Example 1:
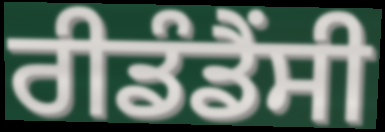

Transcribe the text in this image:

ਰੀਡੰਡੈਂਸੀ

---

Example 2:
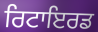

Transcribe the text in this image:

ਰਿਟਾਇਰਡ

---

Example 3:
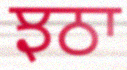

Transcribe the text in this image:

ਝਠਾ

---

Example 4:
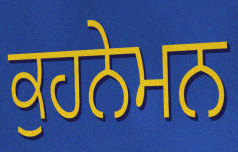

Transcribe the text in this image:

ਕੁਹਨੇਮਨ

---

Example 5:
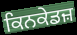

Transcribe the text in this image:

ਕਿਨਕੇਡਜ਼